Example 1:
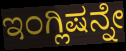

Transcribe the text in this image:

ಇಂಗ್ಲಿಷನ್ನೇ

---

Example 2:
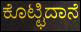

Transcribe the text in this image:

ಕೊಟ್ಟಿದಾನೆ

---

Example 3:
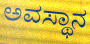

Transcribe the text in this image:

ಅವಸ್ಥಾನ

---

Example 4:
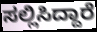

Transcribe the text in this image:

ಸಲ್ಲಿಸಿದ್ದಾರೆ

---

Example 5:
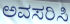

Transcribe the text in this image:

ಅವಸರಿಸಿ